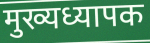
मुख्यध्यापक